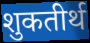
शुकतीर्थ